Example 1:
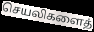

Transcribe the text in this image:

செயலிகளைத்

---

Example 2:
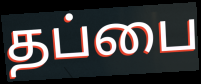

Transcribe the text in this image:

தப்பை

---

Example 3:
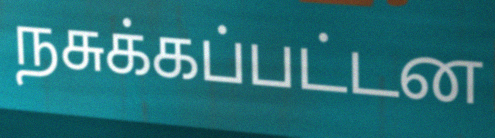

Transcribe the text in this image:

நசுக்கப்பட்டன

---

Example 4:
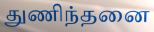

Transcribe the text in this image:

துணிந்தனை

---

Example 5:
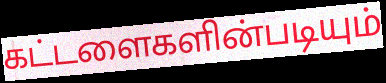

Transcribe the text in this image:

கட்டளைகளின்படியும்